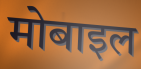
मोबाइल